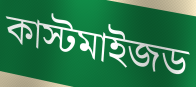
কাস্টমাইজড